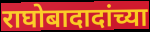
राघोबादादांच्या